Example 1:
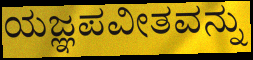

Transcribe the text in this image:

ಯಜ್ಞಪವೀತವನ್ನು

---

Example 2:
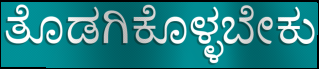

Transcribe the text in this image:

ತೊಡಗಿಕೊಳ್ಳಬೇಕು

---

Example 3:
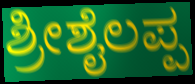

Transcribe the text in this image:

ಶ್ರೀಶೈಲಪ್ಪ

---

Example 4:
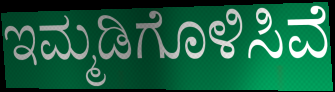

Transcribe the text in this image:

ಇಮ್ಮಡಿಗೊಳಿಸಿವೆ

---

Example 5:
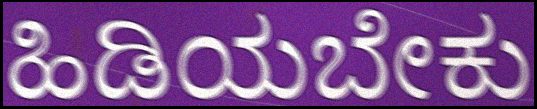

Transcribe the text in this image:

ಹಿಡಿಯಬೇಕು